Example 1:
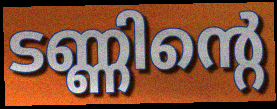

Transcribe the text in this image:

ടണ്ണിന്റെ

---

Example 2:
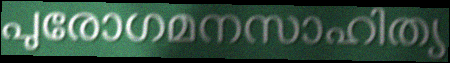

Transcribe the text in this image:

പുരോഗമനസാഹിത്യ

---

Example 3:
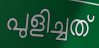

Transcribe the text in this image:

പുളിച്ചത്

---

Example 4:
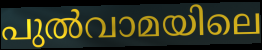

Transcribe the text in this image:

പുൽവാമയിലെ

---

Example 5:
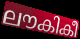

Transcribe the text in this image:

ലൗകികീ